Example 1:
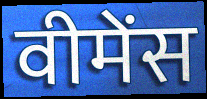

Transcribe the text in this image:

वीमेंस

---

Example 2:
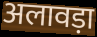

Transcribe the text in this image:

अलावड़ा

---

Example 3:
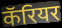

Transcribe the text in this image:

कॅरियर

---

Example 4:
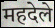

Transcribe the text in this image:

महदेले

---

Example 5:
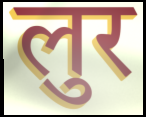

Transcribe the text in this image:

लुर